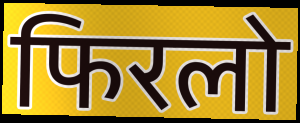
फिरलो